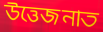
উত্তেজনাত